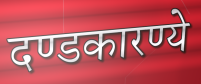
दण्डकारण्ये